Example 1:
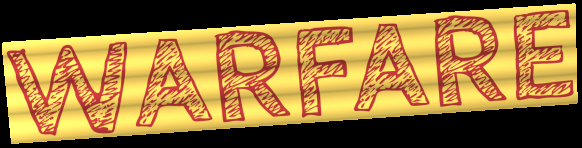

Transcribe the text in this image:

WARFARE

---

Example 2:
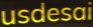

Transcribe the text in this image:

usdesai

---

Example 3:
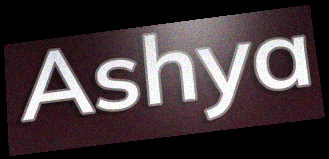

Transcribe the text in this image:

Ashya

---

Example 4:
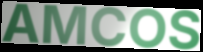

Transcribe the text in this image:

AMCOS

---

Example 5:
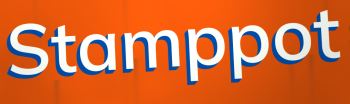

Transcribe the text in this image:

Stamppot